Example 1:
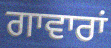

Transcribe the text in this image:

ਗਾਵਾਰਾਂ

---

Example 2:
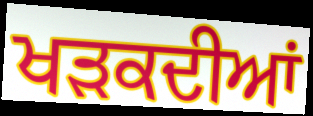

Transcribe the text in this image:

ਖੜਕਦੀਆਂ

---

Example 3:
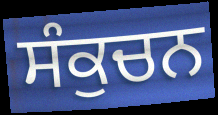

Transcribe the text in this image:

ਸੰਕੁਚਨ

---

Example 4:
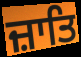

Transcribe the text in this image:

ਜ਼ਾਤਿ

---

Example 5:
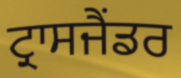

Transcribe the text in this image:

ਟ੍ਰਾਸਜੈਂਡਰ